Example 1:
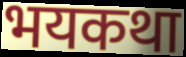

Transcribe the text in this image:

भयकथा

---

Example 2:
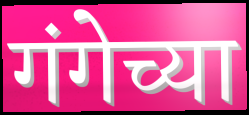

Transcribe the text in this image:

गंगेच्या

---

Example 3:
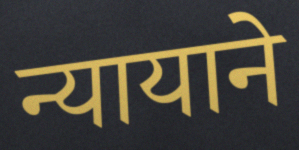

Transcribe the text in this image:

न्यायाने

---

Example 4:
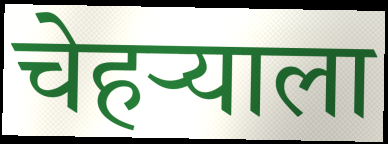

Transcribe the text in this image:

चेहऱ्याला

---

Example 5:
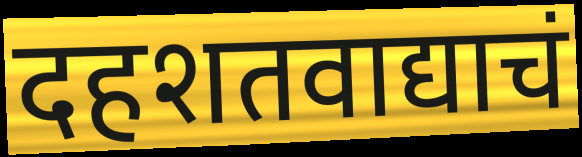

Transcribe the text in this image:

दहशतवाद्याचं